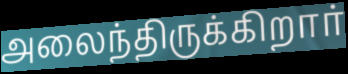
அலைந்திருக்கிறார்